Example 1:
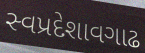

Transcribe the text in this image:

સ્વપ્રદેશાવગાઢ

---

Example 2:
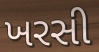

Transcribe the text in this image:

ખરસી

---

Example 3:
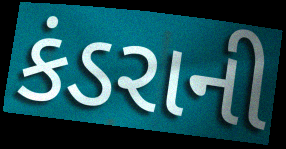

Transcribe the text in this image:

કંડરાની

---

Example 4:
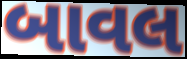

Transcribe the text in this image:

બાવલ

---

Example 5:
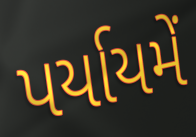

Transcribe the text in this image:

પર્યાયમેં